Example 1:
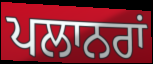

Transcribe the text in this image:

ਪਲਾਨਰਾਂ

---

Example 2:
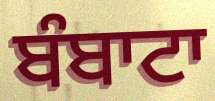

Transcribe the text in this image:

ਬੰਬਾਟਾ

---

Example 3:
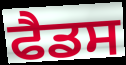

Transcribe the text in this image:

ਫੈਡਸ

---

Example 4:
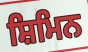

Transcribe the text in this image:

ਸ਼ਿਮਿਨ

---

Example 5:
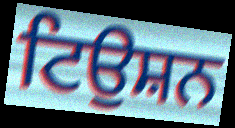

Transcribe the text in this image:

ਟਿਉਸ਼ਨ